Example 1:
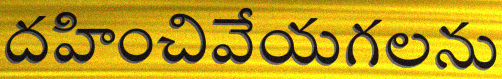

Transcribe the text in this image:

దహించివేయగలను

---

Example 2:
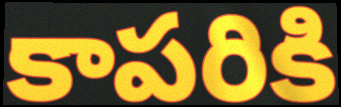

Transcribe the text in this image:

కాపరికి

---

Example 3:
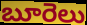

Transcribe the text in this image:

బూరెలు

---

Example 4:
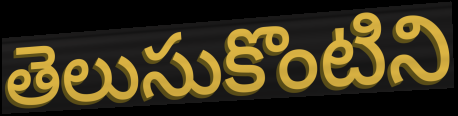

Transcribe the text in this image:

తెలుసుకొంటిని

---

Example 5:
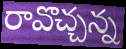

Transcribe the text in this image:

రావొచ్చన్న